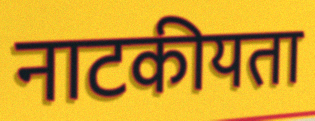
नाटकीयता